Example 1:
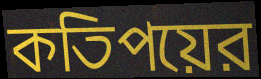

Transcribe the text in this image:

কতিপয়ের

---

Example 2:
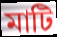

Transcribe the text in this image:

মাটি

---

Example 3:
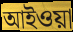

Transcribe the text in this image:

আইওয়া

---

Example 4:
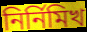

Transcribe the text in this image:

নির্নিমিখ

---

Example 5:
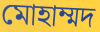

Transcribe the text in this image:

মোহাম্মদ